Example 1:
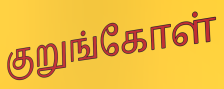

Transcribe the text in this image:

குறுங்கோள்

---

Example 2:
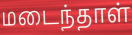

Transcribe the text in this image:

மடைந்தாள்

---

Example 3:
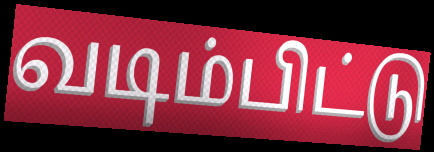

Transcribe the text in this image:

வடிம்பிட்டு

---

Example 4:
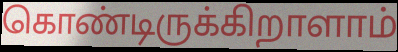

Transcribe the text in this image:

கொண்டிருக்கிறாளாம்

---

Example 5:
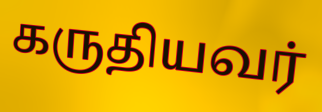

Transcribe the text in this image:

கருதியவர்